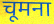
चूमना